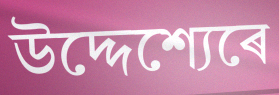
উদ্দেশ্যেৰে